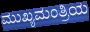
ಮುಖ್ಯಮಂತ್ರಿಯ